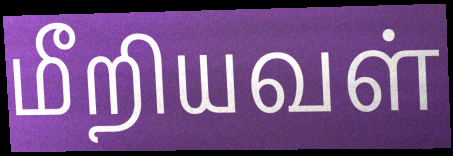
மீறியவள்